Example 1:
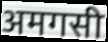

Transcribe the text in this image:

अमगसी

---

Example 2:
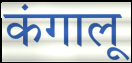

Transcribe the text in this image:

कंगालू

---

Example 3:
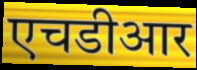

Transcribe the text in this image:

एचडीआर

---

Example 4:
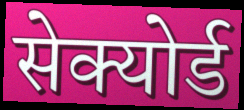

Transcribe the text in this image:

सेक्योर्ड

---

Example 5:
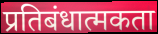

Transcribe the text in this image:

प्रतिबंधात्मकता